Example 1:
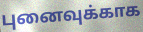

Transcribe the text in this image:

புனைவுக்காக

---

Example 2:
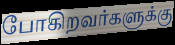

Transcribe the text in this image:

போகிறவர்களுக்கு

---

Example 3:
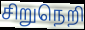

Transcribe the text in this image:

சிறுநெறி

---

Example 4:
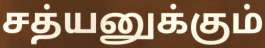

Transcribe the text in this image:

சத்யனுக்கும்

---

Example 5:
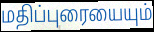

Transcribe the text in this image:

மதிப்புரையையும்